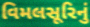
વિમલસૂરિનું